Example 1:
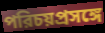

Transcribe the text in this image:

পরিচয়প্রসঙ্গে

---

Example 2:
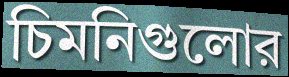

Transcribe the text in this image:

চিমনিগুলোর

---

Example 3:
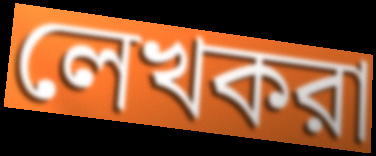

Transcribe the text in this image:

লেখকরা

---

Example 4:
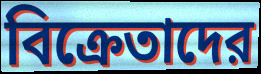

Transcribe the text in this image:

বিক্রেতাদের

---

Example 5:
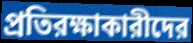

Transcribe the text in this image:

প্রতিরক্ষাকারীদের